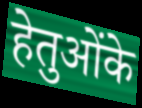
हेतुओंके